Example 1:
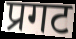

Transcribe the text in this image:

प्रगट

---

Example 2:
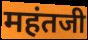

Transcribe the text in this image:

महंतजी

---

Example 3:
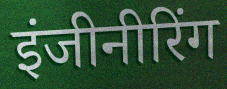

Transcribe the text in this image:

इंजीनीरिंग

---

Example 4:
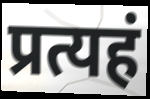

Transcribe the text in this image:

प्रत्यहं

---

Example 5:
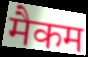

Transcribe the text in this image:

मैकम